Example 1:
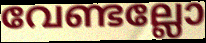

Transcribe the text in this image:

വേണ്ടല്ലോ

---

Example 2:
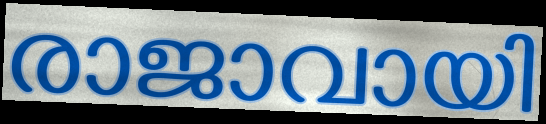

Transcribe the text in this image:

രാജാവായി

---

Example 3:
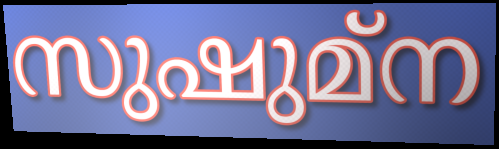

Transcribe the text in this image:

സുഷുമ്ന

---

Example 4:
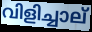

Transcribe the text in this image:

വിളിച്ചാല്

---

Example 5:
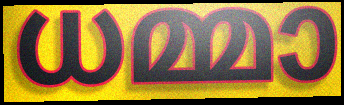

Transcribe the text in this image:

ധമ്മാ